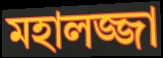
মহালজ্জা